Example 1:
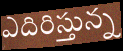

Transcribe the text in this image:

ఎదిరిస్తున్న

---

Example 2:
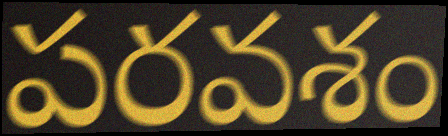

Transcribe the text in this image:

పరవశం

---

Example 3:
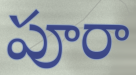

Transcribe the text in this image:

పూరా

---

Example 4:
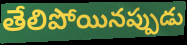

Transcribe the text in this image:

తేలిపోయినప్పుడు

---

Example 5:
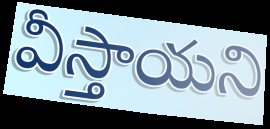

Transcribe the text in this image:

వీస్తాయని